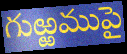
గుఱ్ఱముపై